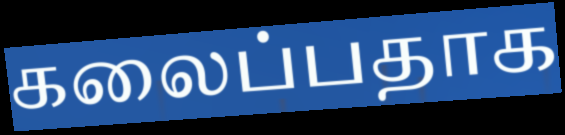
கலைப்பதாக